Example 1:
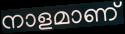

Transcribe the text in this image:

നാളമാണ്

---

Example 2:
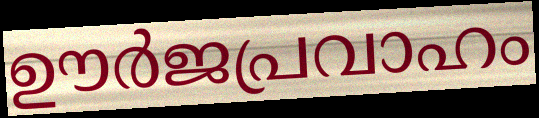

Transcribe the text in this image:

ഊർജപ്രവാഹം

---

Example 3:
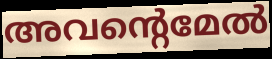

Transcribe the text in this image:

അവന്റെമേൽ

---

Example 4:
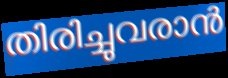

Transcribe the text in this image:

തിരിച്ചുവരാൻ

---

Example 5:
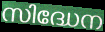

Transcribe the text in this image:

സിദ്ധേന